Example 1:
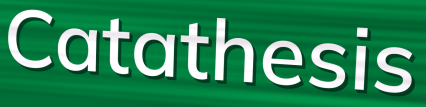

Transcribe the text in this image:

Catathesis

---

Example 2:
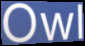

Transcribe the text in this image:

Owl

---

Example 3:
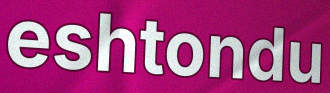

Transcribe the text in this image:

eshtondu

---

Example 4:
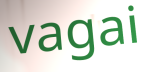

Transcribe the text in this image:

vagai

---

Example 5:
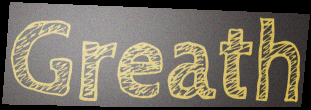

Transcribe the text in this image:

Greath